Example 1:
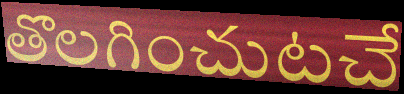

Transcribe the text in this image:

తొలగించుటచే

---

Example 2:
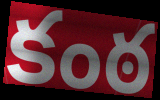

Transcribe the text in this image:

కంఠ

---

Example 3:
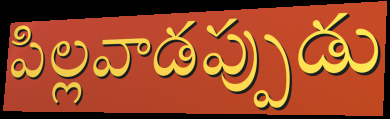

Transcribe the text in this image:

పిల్లవాడప్పుడు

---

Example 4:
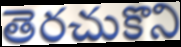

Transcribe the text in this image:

తెరచుకొని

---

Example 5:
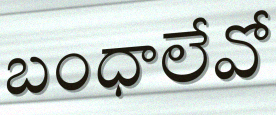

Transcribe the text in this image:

బంధాలేవో